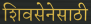
शिवसेनेसाठी